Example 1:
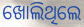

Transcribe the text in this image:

ଖୋଲିଥିଲେ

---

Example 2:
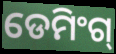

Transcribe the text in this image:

ଡେମିଂଗ୍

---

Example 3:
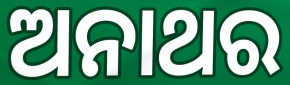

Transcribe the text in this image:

ଅନାଥର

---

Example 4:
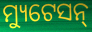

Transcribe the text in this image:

ମ୍ୟୁଟେସନ୍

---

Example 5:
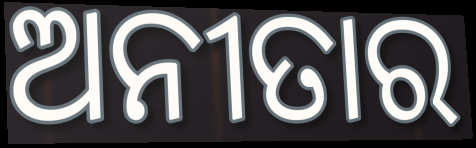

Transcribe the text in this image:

ଅନୀତାର